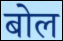
बोल